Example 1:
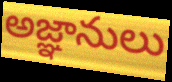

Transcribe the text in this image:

అజ్ఞానులు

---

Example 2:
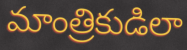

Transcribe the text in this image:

మాంత్రికుడిలా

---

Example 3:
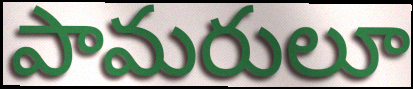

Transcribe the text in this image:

పామరులూ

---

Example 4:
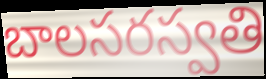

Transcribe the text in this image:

బాలసరస్వతి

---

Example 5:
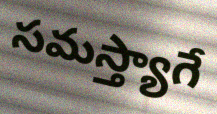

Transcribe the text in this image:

సమస్త్యాగే